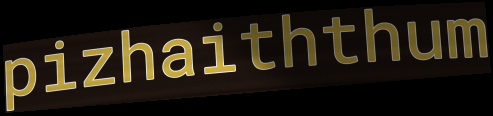
pizhaiththum